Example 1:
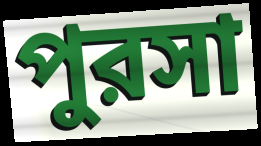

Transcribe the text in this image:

পুরসা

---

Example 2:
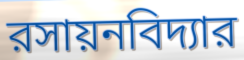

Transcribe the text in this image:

রসায়নবিদ্যার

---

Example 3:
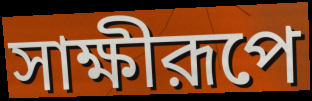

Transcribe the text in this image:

সাক্ষীরূপে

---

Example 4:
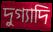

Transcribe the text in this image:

দুগ্যাদি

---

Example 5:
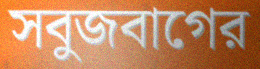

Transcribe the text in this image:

সবুজবাগের